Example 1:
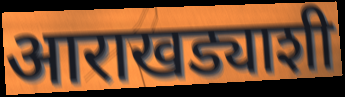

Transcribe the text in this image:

आराखड्याशी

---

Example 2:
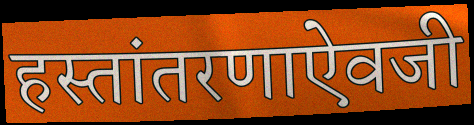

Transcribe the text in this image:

हस्तांतरणाऐवजी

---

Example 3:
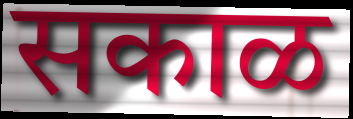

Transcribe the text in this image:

सकाळ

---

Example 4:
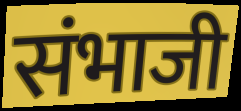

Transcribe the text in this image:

संभाजी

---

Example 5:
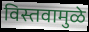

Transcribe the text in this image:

विस्तवामुळे